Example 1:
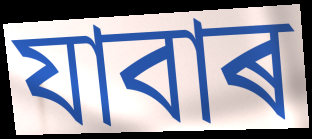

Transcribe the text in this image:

যাবাৰ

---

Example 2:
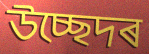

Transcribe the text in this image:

উচ্ছেদৰ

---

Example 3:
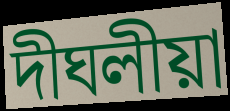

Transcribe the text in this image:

দীঘলীয়া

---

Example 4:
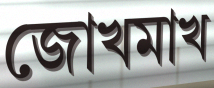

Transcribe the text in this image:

জোখমাখ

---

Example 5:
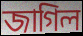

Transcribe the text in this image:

জাগিল